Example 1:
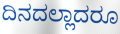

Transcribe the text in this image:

ದಿನದಲ್ಲಾದರೂ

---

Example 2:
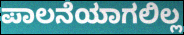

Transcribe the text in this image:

ಪಾಲನೆಯಾಗಲಿಲ್ಲ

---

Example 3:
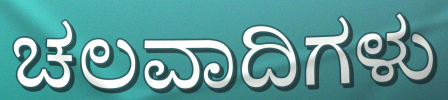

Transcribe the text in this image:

ಚಲವಾದಿಗಳು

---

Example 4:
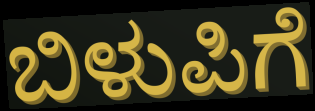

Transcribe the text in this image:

ಬಿಳುಪಿಗೆ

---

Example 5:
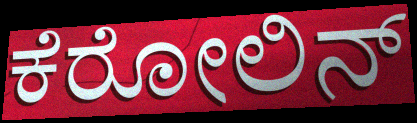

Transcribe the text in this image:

ಕೆರೋಲಿನ್